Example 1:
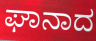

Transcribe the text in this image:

ಘಾನಾದ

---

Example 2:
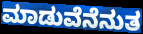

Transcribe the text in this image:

ಮಾಡುವೆನೆನುತ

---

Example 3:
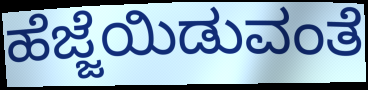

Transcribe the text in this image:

ಹೆಜ್ಜೆಯಿಡುವಂತೆ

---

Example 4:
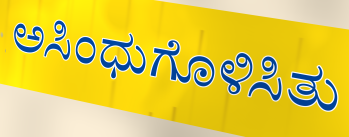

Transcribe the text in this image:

ಅಸಿಂಧುಗೊಳಿಸಿತು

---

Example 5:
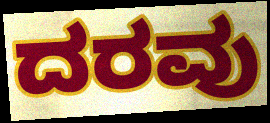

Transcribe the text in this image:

ದರವು